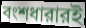
বংশধারারই